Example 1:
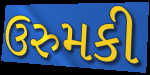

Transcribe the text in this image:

ઉરુમકી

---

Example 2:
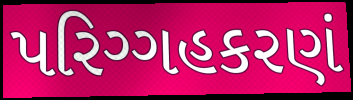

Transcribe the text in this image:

પરિગ્ગહકરણં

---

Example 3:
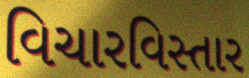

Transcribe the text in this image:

વિચારવિસ્તાર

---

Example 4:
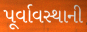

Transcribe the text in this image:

પૂર્વાવસ્થાની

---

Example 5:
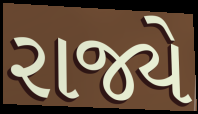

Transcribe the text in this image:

રાજ્યે